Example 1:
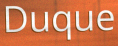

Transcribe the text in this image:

Duque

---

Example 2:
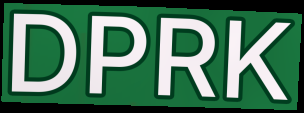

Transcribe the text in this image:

DPRK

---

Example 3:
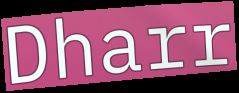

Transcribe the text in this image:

Dharr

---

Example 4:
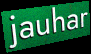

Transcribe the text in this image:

jauhar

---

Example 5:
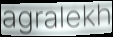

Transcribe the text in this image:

agralekh